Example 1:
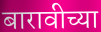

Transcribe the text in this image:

बारावीच्या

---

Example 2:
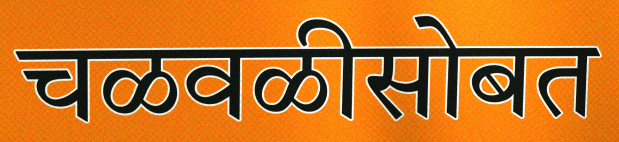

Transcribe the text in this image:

चळवळीसोबत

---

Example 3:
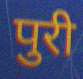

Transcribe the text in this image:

पुरी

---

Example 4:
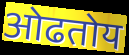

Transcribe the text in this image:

ओढतोय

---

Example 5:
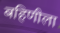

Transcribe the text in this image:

बहिणीला